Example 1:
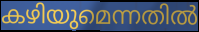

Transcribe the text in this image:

കഴിയുമെന്നതിൽ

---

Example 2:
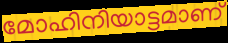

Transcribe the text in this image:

മോഹിനിയാട്ടമാണ്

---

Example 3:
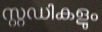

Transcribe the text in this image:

സ്റ്റഡികളും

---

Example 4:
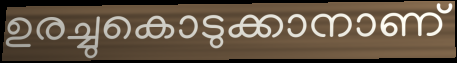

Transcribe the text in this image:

ഉരച്ചുകൊടുക്കാനാണ്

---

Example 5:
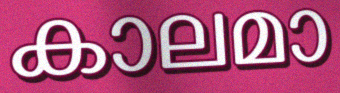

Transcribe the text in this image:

കാലമാ